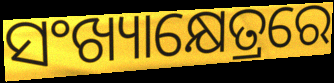
ସଂଖ୍ୟାକ୍ଷେତ୍ରରେ